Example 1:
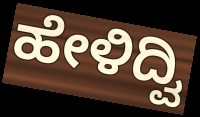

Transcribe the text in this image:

ಹೇಳಿದ್ವಿ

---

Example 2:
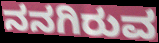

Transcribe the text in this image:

ನನಗಿರುವ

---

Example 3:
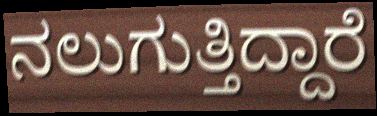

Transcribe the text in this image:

ನಲುಗುತ್ತಿದ್ದಾರೆ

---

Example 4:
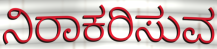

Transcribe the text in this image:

ನಿರಾಕರಿಸುವ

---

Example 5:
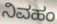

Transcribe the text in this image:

ನಿವಹಂ